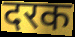
दरक